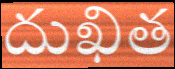
దుఖిత